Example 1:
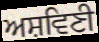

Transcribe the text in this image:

ਅਸ਼ਵਿਣੀ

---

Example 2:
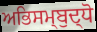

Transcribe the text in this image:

ਅਭਿਸਮ੍ਬੁਦ੍ਧੋ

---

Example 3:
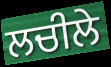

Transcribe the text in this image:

ਲਚੀਲੇ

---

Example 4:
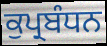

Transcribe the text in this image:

ਕੁਪ੍ਰਬੰਧਨ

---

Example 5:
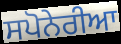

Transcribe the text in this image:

ਸਪੋਨੇਰੀਆ